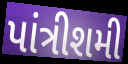
પાંત્રીશમી